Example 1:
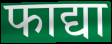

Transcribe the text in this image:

फाद्या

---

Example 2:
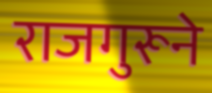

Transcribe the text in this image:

राजगुरूने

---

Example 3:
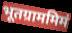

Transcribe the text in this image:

भूतग्राममिमं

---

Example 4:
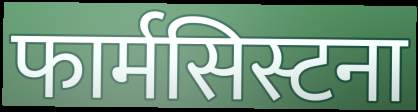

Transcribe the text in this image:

फार्मसिस्टना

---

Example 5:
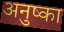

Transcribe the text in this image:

अनुष्का